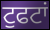
ਟੁਫਟਾਂ